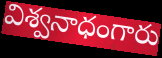
విశ్వనాధంగారు